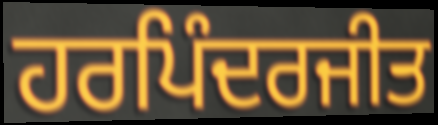
ਹਰਪਿੰਦਰਜੀਤ